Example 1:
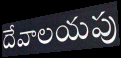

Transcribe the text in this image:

దేవాలయపు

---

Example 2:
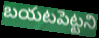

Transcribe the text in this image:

బయటపెట్టని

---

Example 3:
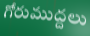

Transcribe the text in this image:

గోరుముద్దలు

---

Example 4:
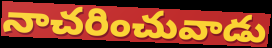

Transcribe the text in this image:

నాచరించువాడు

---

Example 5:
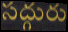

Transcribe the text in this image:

సద్గురు